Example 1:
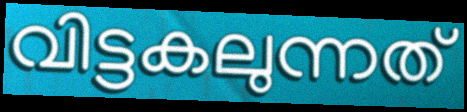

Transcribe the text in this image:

വിട്ടകലുന്നത്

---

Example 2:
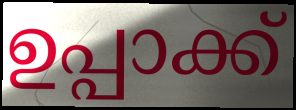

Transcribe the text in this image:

ഉപ്പാക്ക്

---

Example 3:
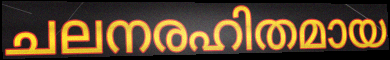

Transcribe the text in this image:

ചലനരഹിതമായ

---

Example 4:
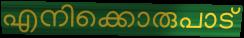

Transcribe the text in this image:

എനിക്കൊരുപാട്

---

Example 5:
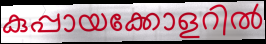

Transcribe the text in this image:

കുപ്പായക്കോളറിൽ